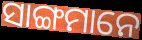
ସାଙ୍ଗମାନେ